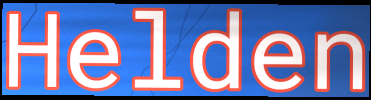
Helden